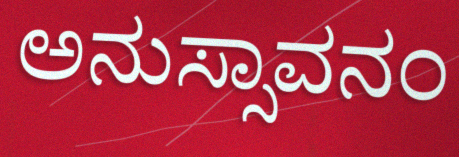
ಅನುಸ್ಸಾವನಂ